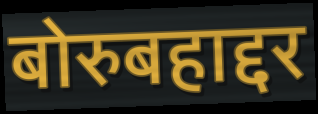
बोरुबहाद्दर